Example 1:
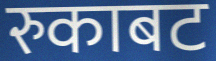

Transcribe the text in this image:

रुकाबट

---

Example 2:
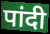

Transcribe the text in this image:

पांदी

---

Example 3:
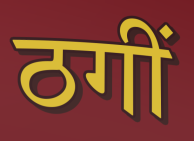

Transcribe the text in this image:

ठगीं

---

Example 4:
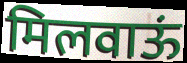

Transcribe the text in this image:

मिलवाऊं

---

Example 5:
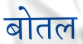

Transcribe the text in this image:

बोतल